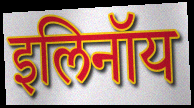
इलिनॉय